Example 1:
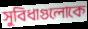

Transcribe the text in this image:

সুবিধাগুলোকে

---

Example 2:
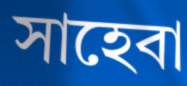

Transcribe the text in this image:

সাহেবা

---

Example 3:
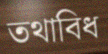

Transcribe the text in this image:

তথাবিধ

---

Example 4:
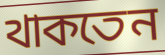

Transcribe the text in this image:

থাকতেন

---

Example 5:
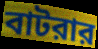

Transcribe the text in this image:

বাটরার